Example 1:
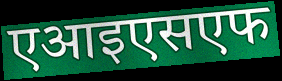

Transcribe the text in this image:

एआइएसएफ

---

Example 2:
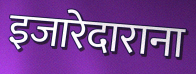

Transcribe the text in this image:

इजारेदाराना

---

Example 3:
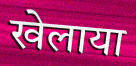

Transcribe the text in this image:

खेलाया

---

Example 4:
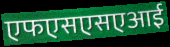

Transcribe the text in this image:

एफएसएसएआई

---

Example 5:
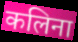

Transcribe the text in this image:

कलिना